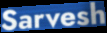
Sarvesh